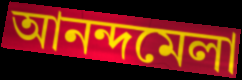
আনন্দমেলা